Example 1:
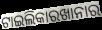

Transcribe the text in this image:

ଟାଇଲିକାରଖାନାର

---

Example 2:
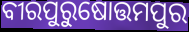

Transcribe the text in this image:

ବୀରପୁରୁଷୋତ୍ତମପୁର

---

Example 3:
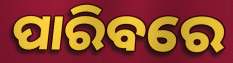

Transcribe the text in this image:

ପାରିବରେ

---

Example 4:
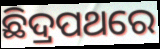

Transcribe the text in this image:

ଛିଦ୍ରପଥରେ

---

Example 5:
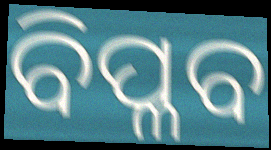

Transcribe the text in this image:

ବିପ୍ଳବ